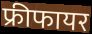
फ्रीफायर